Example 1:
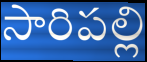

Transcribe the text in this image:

సారిపల్లి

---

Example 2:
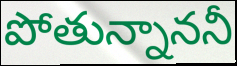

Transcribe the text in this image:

పోతున్నాననీ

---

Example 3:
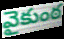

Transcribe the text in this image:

వైకుంఠ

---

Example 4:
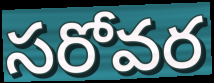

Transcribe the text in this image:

సరోవర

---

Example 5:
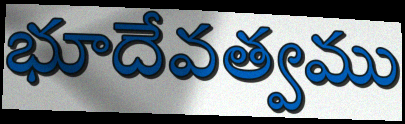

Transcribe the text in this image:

భూదేవత్వము